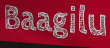
Baagilu